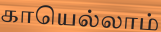
காயெல்லாம்